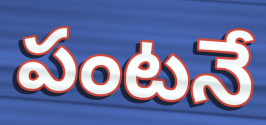
పంటనే